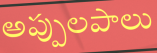
అప్పులపాలు